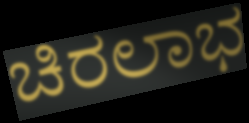
ಚಿರಲಾಭ